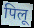
पिलू